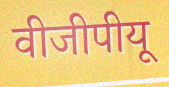
वीजीपीयू